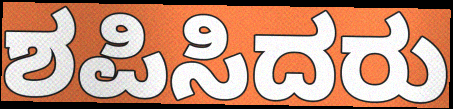
ಶಪಿಸಿದರು